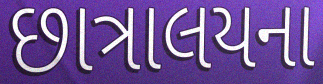
છાત્રાલયના